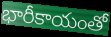
భారీకాయంతో